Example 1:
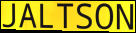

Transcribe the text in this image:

JALTSON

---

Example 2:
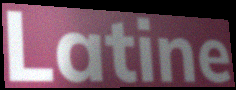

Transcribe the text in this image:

Latine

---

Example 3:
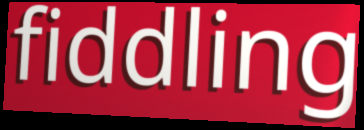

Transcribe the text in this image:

fiddling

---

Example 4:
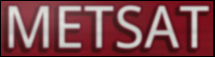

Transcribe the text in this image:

METSAT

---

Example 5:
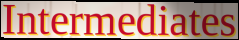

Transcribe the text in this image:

Intermediates